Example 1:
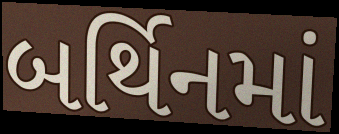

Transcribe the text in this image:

બર્થિનમાં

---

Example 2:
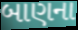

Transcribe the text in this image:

બાણના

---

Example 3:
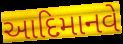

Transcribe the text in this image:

આદિમાનવે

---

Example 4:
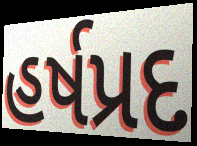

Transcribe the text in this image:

હર્ષપ્રદ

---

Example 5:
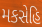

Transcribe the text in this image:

મકસેહિ